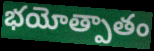
భయోత్పాతం